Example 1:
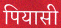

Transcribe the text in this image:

पियासी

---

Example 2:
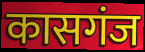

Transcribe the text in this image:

कासगंज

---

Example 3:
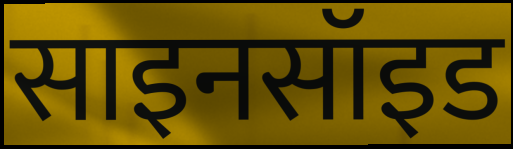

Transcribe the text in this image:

साइनसॉइड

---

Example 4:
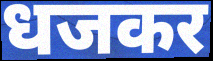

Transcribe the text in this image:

धजकर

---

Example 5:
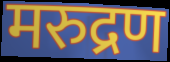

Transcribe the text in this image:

मरुद्रण